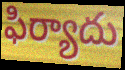
ఫిర్యాదు